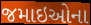
જમાઇઓના